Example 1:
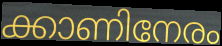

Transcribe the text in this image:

ക്കാണിനേരം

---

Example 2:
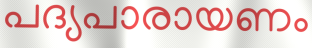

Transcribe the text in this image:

പദ്യപാരായണം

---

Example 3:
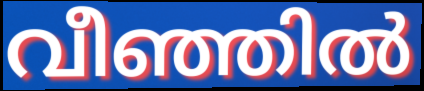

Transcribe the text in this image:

വീഞ്ഞിൽ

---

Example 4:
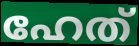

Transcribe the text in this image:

ഹേത്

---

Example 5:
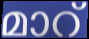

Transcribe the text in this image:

മാറ്